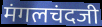
मंगलचंदजी